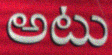
అటు